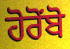
ਹੋਰੋਂਬੋ